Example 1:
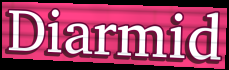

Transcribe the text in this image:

Diarmid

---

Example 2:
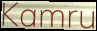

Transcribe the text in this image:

Kamru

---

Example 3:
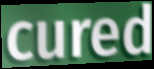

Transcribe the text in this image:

cured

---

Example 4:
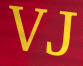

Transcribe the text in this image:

VJ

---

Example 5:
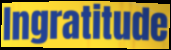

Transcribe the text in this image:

Ingratitude